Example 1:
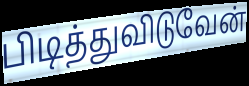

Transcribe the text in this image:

பிடித்துவிடுவேன்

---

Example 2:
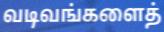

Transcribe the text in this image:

வடிவங்களைத்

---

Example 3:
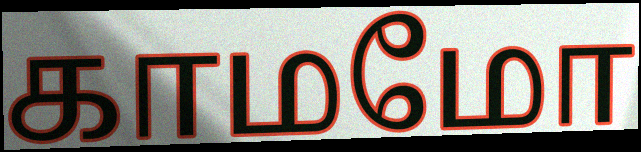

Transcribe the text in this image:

காமமோ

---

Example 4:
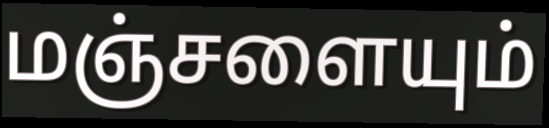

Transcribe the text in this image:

மஞ்சளையும்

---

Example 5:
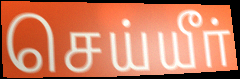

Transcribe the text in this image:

செய்யீர்